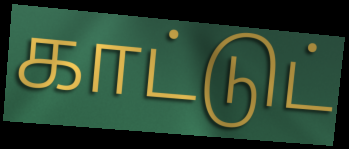
காட்டுட்